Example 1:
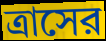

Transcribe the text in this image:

ত্রাসের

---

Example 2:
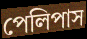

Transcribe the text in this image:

পেলিপাস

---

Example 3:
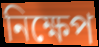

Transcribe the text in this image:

নিক্ষেপ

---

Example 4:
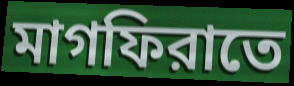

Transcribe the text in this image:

মাগফিরাতে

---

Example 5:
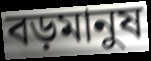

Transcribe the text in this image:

বড়মানুষ